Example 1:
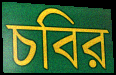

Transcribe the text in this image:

চবির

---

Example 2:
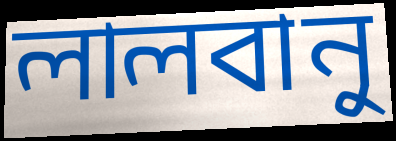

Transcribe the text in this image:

লালবানু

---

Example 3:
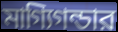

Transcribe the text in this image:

মাগ্যিগন্ডার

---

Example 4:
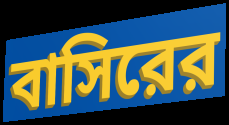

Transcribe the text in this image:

বাসিরের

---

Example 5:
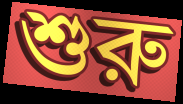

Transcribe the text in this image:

শুরু